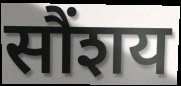
सौंशय